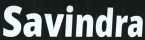
Savindra